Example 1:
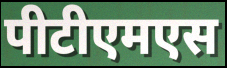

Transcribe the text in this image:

पीटीएमएस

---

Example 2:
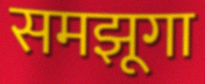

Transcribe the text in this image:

समझूगा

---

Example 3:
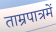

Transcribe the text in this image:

ताम्रपात्रमें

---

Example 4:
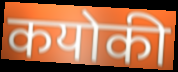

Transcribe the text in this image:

कयोकी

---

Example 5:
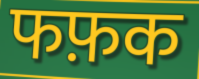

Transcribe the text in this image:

फफ़क